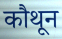
कौथून